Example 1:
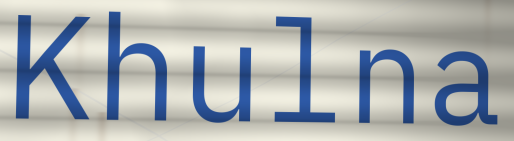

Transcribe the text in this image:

Khulna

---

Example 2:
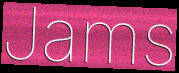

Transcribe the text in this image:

Jams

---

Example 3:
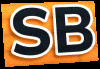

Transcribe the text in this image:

SB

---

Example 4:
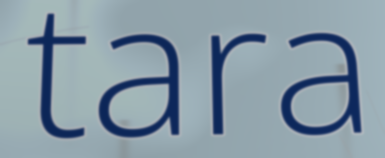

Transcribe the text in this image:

tara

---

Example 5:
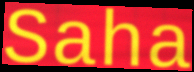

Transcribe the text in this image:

Saha